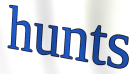
hunts